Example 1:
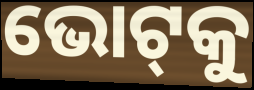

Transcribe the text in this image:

ଭୋଟ୍‍କୁ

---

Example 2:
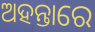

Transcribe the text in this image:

ଅହନ୍ତାରେ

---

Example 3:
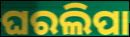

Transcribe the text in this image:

ଘରଲିପା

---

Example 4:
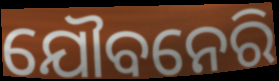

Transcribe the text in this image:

ଯୌବନେରି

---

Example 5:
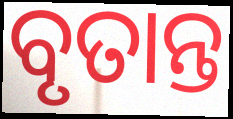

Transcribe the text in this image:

ବୃତାନ୍ତ